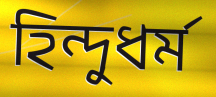
হিন্দুধৰ্ম